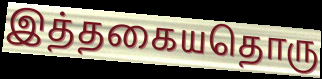
இத்தகையதொரு